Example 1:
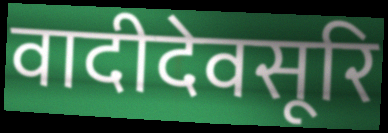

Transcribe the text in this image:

वादीदेवसूरि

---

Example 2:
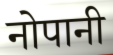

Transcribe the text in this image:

नोपानी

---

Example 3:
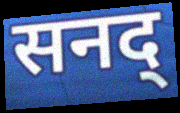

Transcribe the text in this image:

सनद्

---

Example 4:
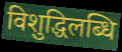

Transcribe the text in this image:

विशुद्धिलब्धि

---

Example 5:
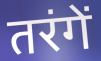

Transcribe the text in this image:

तरंगें